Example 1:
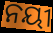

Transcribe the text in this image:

ନୟୀ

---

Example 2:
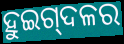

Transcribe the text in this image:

ହୁଇଗ୍‌ଦଳର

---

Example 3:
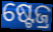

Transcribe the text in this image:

ଷ୍ଟେଜ୍ର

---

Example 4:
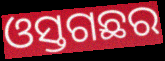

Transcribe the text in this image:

ଓସ୍ତଗଛର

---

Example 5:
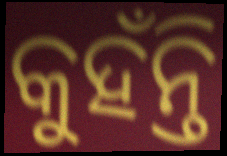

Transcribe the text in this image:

କୁହଁନ୍ତି